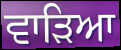
ਵਾੜਿਆ